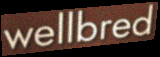
wellbred